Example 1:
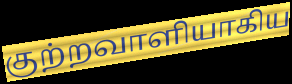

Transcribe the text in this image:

குற்றவாளியாகிய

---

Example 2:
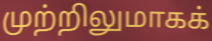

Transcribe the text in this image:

முற்றிலுமாகக்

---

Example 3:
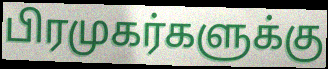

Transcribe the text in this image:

பிரமுகர்களுக்கு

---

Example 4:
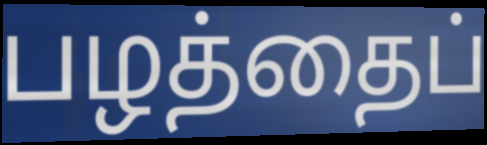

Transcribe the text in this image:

பழத்தைப்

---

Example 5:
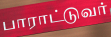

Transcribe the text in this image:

பாராட்டுவர்